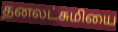
தனலட்சுமியை